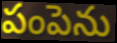
పంపెను